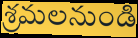
శ్రమలనుండి